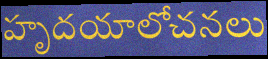
హృదయాలోచనలు